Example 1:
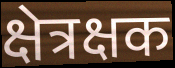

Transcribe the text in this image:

क्षेत्रक्षक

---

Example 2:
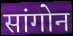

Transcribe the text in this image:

सांगोन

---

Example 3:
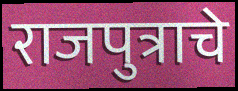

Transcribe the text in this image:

राजपुत्राचे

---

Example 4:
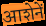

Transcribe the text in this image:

आशेनें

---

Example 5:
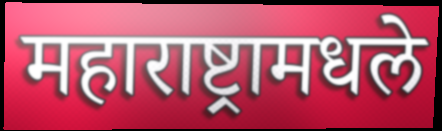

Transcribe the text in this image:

महाराष्ट्रामधले